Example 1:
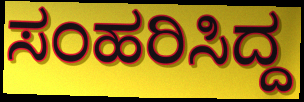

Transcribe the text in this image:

ಸಂಹರಿಸಿದ್ದ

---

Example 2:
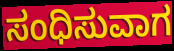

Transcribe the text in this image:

ಸಂಧಿಸುವಾಗ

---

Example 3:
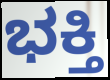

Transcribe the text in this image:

ಭಕ್ತಿ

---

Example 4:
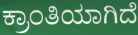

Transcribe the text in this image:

ಕ್ರಾಂತಿಯಾಗಿದೆ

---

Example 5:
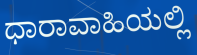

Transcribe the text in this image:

ಧಾರಾವಾಹಿಯಲ್ಲಿ